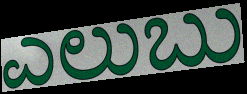
ಎಲುಬು